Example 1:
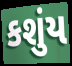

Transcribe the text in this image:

કશુંય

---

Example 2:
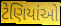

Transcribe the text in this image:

ટેણિયાંઓ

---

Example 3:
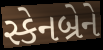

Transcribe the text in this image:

સ્કેનબ્રેને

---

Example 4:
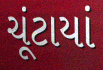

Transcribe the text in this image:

ચૂંટાયાં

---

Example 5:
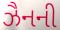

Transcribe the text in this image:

ઝૈનની